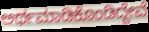
ಅರ್ಥಮಾಡಿಕೊಂಡಿದ್ದೇವೆ